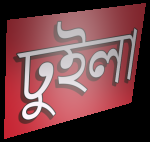
ঢুইলা